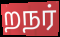
றநர்